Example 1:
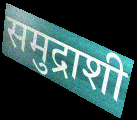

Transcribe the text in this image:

समुद्राशी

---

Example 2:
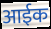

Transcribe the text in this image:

आईक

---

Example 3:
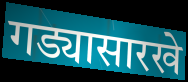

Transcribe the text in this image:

गड्यासारखे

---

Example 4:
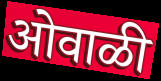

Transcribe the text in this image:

ओवाळी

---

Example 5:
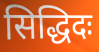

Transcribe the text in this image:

सिद्धिदः